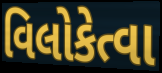
વિલોકેત્વા